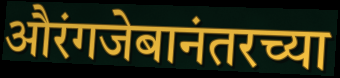
औरंगजेबानंतरच्या